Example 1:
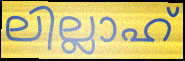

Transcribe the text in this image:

ലില്ലാഹ്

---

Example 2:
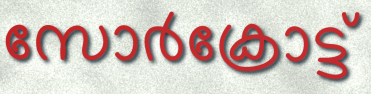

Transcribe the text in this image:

സോർക്രോട്ട്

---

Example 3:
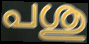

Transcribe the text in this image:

പശു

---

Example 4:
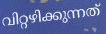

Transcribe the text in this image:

വിറ്റഴിക്കുന്നത്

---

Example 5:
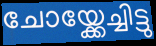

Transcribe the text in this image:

ചോയ്ക്കേച്ചിട്ടു